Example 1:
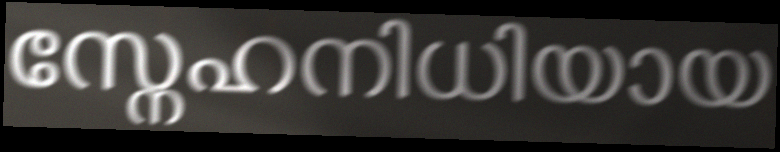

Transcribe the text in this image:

സ്നേഹനിധിയായ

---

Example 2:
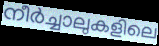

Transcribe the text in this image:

നീർച്ചാലുകളിലെ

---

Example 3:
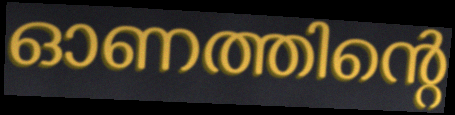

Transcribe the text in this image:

ഓണത്തിന്റെ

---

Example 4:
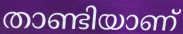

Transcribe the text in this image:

താണ്ടിയാണ്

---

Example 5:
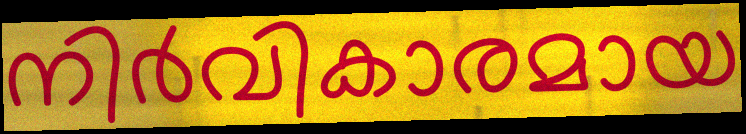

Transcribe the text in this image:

നിർവികാരമായ